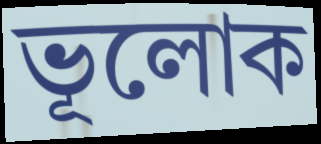
ভূলোক